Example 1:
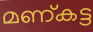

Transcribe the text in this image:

മണ്കട്ട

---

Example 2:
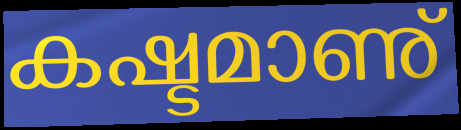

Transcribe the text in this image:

കഷ്ടമാണു്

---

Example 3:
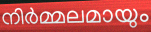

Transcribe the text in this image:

നിർമ്മലമായും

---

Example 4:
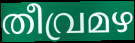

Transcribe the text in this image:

തീവ്രമഴ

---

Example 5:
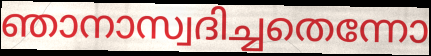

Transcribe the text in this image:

ഞാനാസ്വദിച്ചതെന്നോ